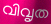
വിവൃത